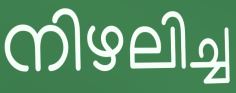
നിഴലിച്ച